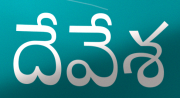
దేవేశ